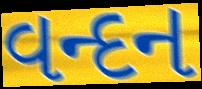
વન્દન